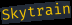
Skytrain